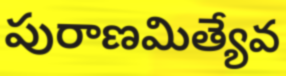
పురాణమిత్యేవ